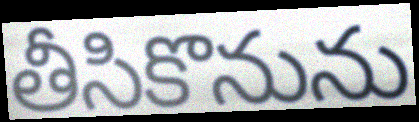
తీసికొనును